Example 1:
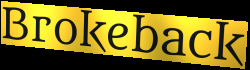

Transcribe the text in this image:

Brokeback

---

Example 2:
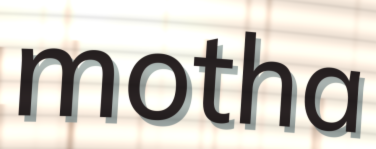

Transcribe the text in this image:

motha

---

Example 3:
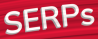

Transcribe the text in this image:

SERPs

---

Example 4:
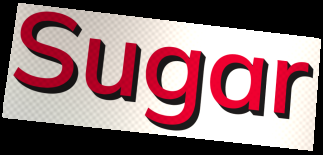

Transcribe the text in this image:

Sugar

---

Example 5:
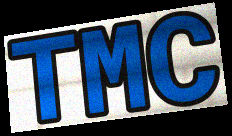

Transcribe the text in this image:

TMC